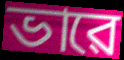
ভাৱে